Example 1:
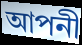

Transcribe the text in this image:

আপনী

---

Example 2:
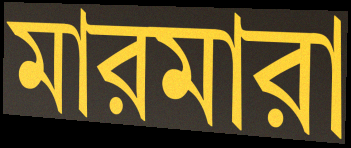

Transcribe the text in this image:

মারমারা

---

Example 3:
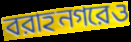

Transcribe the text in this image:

বরাহনগরেও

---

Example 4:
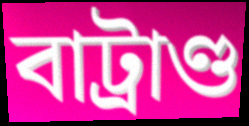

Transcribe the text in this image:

বাট্রাণ্ড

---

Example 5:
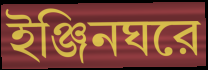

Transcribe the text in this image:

ইঞ্জিনঘরে